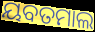
ୟବତମାଲ